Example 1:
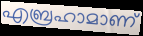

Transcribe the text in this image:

എബ്രഹാമാണ്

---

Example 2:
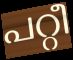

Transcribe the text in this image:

പറ്റീ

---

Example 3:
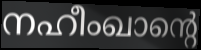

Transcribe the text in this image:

നഹീംഖാന്റെ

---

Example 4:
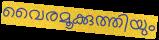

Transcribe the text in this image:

വൈരമൂക്കുത്തിയും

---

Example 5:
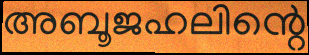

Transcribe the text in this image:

അബൂജഹലിന്റെ